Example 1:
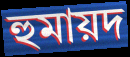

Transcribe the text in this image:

হুমায়দ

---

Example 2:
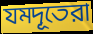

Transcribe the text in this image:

যমদূতেরা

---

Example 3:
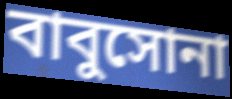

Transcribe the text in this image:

বাবুসোনা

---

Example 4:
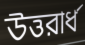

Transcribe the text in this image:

উত্তরার্ধ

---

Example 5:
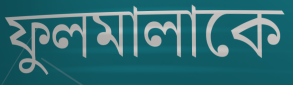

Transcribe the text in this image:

ফুলমালাকে